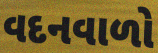
વદનવાળો